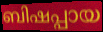
ബിഷപ്പായ